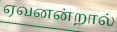
ஏவனன்றால்